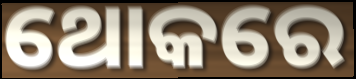
ଥୋକରେ